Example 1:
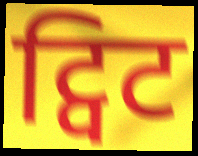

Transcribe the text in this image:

ट्विट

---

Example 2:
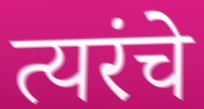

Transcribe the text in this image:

त्यरंचे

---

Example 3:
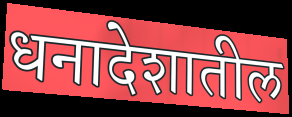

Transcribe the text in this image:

धनादेशातील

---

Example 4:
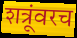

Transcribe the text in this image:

शत्रूंवरच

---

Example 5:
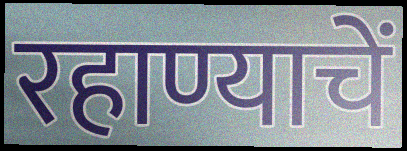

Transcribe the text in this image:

रहाण्याचें